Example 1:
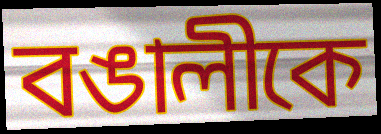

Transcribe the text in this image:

বঙালীকে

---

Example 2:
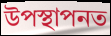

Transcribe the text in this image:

উপস্থাপনত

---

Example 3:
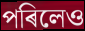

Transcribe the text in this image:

পৰিলেও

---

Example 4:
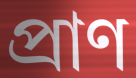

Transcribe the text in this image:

প্ৰাণ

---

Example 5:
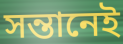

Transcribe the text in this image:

সন্তানেই